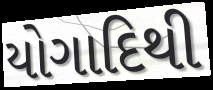
યોગાદિથી